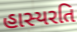
હાસ્યરતિ